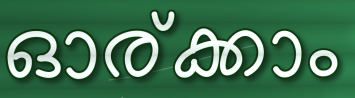
ഓര്ക്കാം